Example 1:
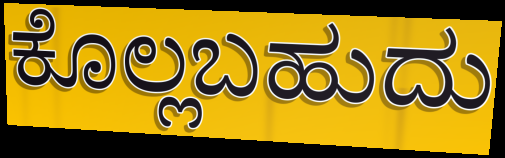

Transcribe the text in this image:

ಕೊಲ್ಲಬಹುದು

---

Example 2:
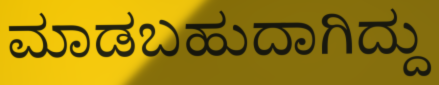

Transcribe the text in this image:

ಮಾಡಬಹುದಾಗಿದ್ದು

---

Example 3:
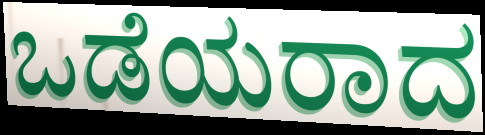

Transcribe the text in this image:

ಒಡೆಯರಾದ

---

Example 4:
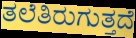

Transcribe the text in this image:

ತಲೆತಿರುಗುತ್ತದೆ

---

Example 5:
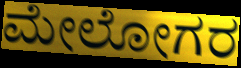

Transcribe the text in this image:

ಮೇಲೋಗರ